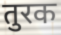
तुरक